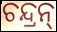
ଚନ୍ଦ୍ରନ୍